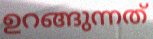
ഉറങ്ങുന്നത്